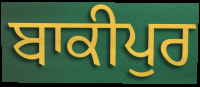
ਬਾਕੀਪੁਰ